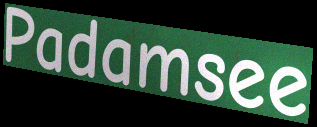
Padamsee